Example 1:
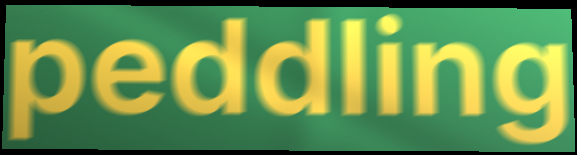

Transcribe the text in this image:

peddling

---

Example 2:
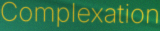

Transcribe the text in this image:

Complexation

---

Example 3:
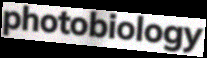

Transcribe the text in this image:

photobiology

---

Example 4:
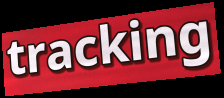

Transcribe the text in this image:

tracking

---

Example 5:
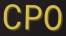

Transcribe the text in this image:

CPO